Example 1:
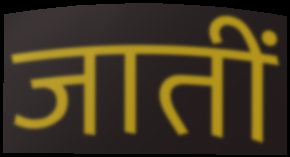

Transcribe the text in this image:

जातीं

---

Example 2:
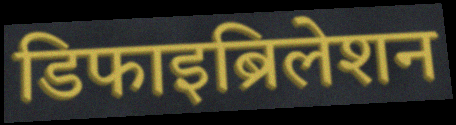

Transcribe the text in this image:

डिफाइब्रिलेशन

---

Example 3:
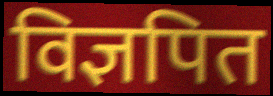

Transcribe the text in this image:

विज्ञपित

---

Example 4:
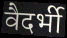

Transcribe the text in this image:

वैदर्भी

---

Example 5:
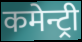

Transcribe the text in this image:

कमेन्ट्री